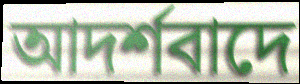
আদর্শবাদে